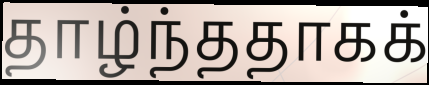
தாழ்ந்ததாகக்